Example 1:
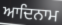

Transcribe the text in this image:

ਆਦਿਨਾਮ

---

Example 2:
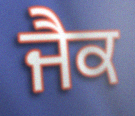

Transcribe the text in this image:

ਜੈਕ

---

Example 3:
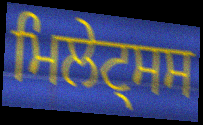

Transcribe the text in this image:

ਮਿਲੇਟ੍ਸਸ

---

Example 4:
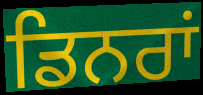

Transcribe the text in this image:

ਡਿਨਰਾਂ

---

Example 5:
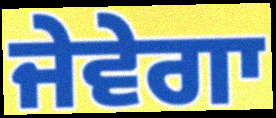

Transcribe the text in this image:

ਜੇਵੇਗਾ